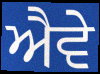
ਐਵੇ